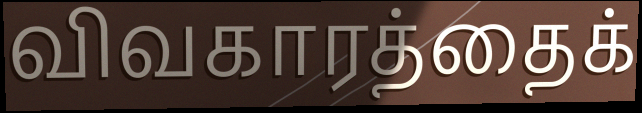
விவகாரத்தைக்